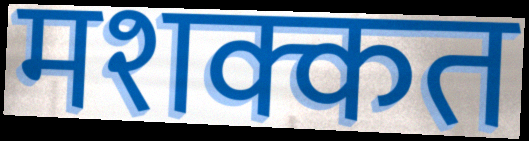
मशक्कत